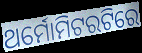
ଥର୍ମୋମିଟରଟିରେ